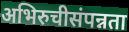
अभिरुचीसंपन्नता